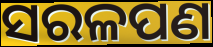
ସରଳପଣ